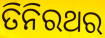
ତିନିରଥର